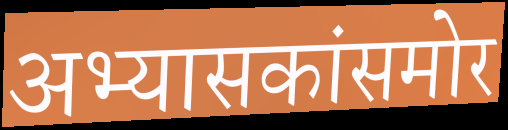
अभ्यासकांसमोर